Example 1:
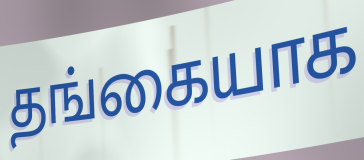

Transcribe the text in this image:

தங்கையாக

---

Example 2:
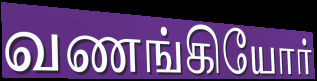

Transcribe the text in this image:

வணங்கியோர்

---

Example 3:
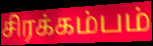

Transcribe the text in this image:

சிரக்கம்பம்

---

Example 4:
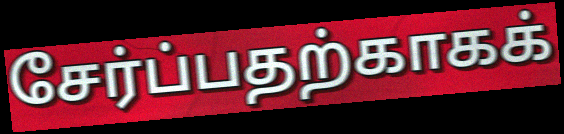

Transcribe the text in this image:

சேர்ப்பதற்காகக்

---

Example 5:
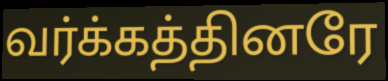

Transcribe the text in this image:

வர்க்கத்தினரே